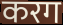
करग